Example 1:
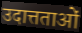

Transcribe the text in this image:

उदात्तताओं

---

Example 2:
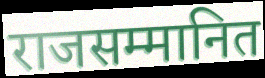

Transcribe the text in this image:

राजसम्मानित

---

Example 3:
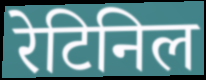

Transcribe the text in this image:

रेटिनिल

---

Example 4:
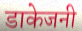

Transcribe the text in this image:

डाकेजनी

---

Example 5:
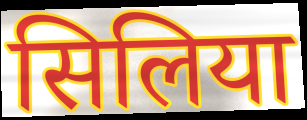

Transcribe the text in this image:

सिलिया